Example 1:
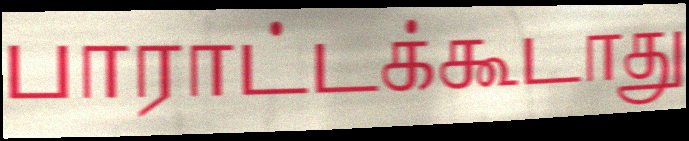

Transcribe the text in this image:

பாராட்டக்கூடாது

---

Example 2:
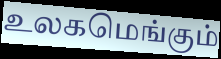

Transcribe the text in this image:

உலகமெங்கும்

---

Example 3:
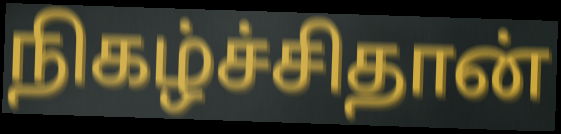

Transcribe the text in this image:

நிகழ்ச்சிதான்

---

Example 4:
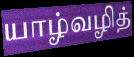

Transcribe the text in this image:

யாழ்வழித்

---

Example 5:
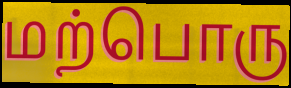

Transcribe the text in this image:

மற்பொரு